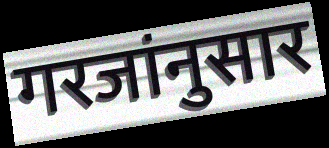
गरजांनुसार